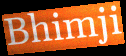
Bhimji